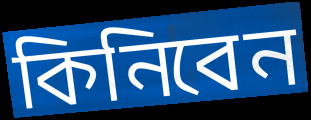
কিনিবেন